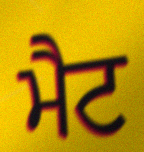
ਮੈਟ